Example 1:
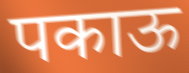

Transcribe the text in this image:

पकाऊ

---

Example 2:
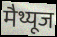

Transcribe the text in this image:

मैथ्यूज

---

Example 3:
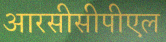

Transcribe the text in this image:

आरसीसीपीएल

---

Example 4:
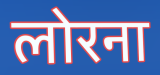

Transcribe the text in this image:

लोरना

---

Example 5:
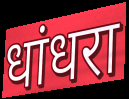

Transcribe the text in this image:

धांधरा